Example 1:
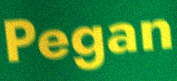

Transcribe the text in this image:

Pegan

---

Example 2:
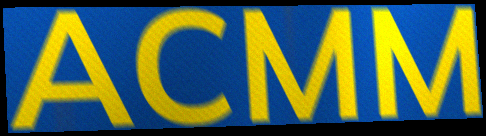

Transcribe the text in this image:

ACMM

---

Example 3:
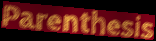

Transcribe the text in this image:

Parenthesis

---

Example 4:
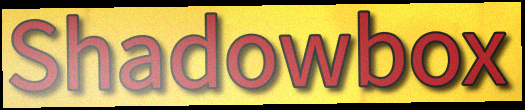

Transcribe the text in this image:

Shadowbox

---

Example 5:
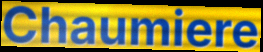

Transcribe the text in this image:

Chaumiere